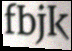
fbjk